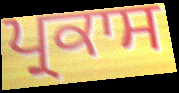
ਪ੍ਰਕਾਸ